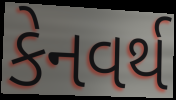
કેનવર્થ